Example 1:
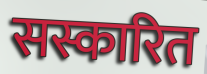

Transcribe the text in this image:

सस्कारित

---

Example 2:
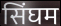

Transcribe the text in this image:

सिंघम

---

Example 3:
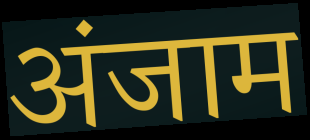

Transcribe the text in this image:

अंजाम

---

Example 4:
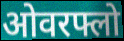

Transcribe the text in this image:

ओवरफ्लो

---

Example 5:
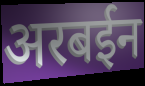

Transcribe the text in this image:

अरबईन